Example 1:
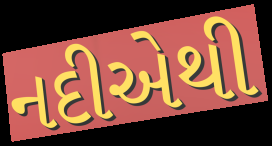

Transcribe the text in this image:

નદીએથી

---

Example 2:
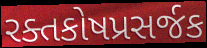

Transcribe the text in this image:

રક્તકોષપ્રસર્જક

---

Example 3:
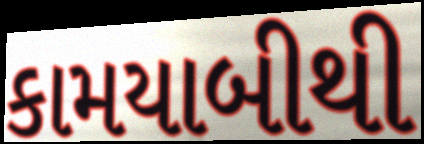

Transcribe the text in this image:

કામયાબીથી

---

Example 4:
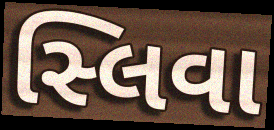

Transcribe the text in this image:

સ્લિવા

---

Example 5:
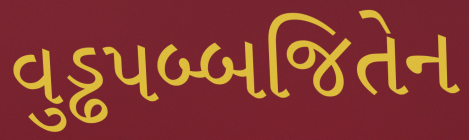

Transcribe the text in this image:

વુડ્ઢપબ્બજિતેન